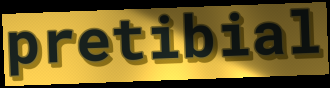
pretibial